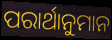
ପରାର୍ଥାନୁମାନ